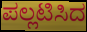
ಪಲ್ಲಟಿಸಿದ